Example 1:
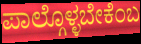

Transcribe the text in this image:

ಪಾಲ್ಗೊಳ್ಳಬೇಕೆಂಬ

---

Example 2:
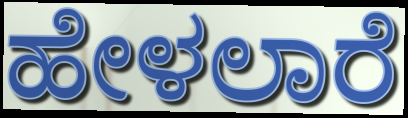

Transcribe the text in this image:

ಹೇಳಲಾರೆ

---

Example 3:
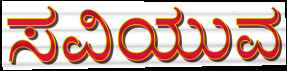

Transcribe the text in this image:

ಸವಿಯುವ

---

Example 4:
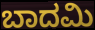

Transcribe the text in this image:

ಬಾದಮಿ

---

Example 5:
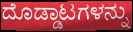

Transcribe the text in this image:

ದೊಡ್ಡಾಟಗಳನ್ನು